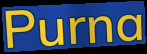
Purna